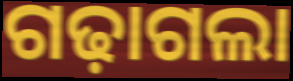
ଗଢ଼ାଗଲା